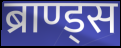
ब्राण्‍ड्स